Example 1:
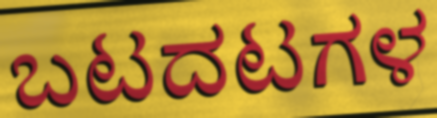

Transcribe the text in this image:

ಬಟದಟಗಳ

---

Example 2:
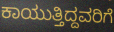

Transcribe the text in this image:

ಕಾಯುತ್ತಿದ್ದವರಿಗೆ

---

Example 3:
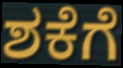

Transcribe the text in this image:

ಶಕೆಗೆ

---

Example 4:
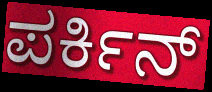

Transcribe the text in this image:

ಪರ್ಕಿನ್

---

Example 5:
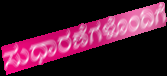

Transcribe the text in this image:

ಸುಧಾರಣೆಗಳೊಂದಿಗೆ